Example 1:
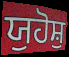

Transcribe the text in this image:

ਯੁਹੋਸ਼ੁ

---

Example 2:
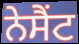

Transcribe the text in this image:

ਨੇਸੈਂਟ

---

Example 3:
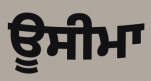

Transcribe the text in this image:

ਊਸੀਮਾ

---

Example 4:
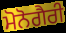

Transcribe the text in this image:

ਮੋਨੋਗੈਰੀ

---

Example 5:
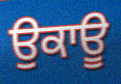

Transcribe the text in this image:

ਉਕਾਊ